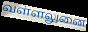
வள்ளலுனை